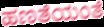
ಹಣತೆಯಂತೆ